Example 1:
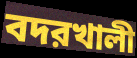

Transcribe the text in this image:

বদরখালী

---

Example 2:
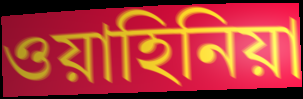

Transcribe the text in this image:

ওয়াহিনিয়া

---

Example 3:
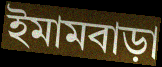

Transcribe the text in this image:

ইমামবাড়া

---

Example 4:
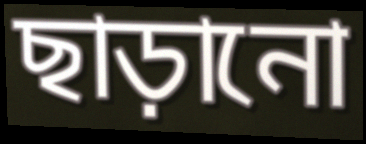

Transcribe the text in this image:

ছাড়ানো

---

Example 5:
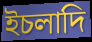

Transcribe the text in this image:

ইচলাদি